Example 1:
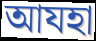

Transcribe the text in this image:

আযহা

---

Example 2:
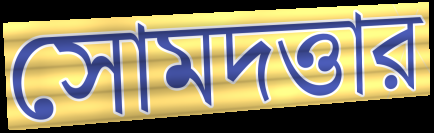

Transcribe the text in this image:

সোমদত্তার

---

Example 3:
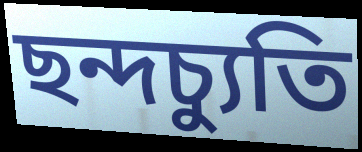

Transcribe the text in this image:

ছন্দচ্যুতি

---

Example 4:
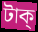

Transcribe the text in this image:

টাক্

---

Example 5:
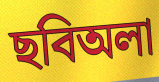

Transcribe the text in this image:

ছবিঅলা